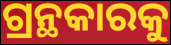
ଗ୍ରନ୍ଥକାରକୁ